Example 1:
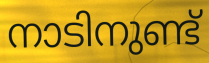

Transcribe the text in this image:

നാടിനുണ്ട്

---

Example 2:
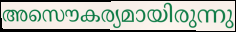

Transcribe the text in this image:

അസൌകര്യമായിരുന്നു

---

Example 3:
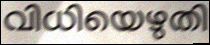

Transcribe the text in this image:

വിധിയെഴുതി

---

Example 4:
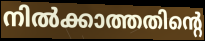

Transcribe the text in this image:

നിൽക്കാത്തതിന്റെ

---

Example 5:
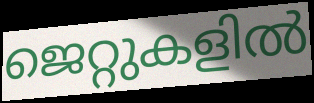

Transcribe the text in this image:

ജെറ്റുകളിൽ